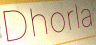
Dhorla